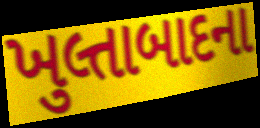
ખુલ્તાબાદના